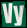
Vy